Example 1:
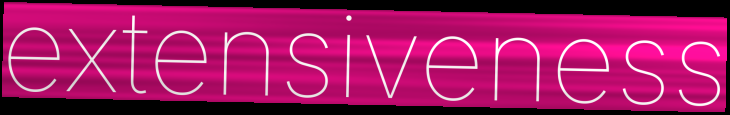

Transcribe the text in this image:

extensiveness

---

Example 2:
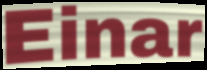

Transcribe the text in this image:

Einar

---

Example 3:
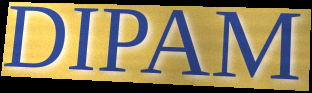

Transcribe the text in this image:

DIPAM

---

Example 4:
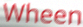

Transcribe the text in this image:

Wheen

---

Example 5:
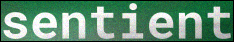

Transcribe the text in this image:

sentient